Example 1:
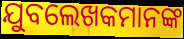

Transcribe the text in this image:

ଯୁବଲେଖକମାନଙ୍କ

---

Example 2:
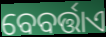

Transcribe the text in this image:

ବେବର୍ତ୍ତାଏ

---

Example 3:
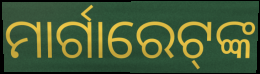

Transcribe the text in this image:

ମାର୍ଗାରେଟ୍‍ଙ୍କ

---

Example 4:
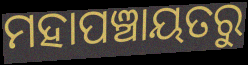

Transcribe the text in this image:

ମହାପଞ୍ଚାୟତରୁ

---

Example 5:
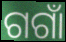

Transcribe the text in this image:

ଗଗାଁ